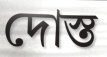
দোস্ত